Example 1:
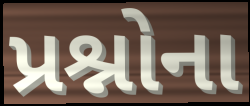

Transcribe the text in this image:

પ્રશ્નોના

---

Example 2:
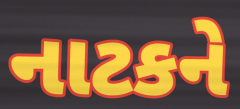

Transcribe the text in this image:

નાટકને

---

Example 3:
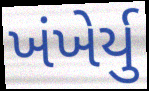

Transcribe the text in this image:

ખંખેર્યુ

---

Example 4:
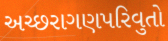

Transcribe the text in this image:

અચ્છરાગણપરિવુતો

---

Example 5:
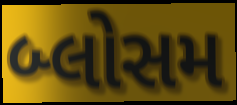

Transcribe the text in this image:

બ્લોસમ